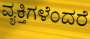
ವ್ಯಕ್ತಿಗಳೆಂದರೆ